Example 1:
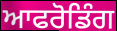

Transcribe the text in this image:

ਆਫਰੋਡਿੰਗ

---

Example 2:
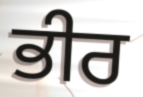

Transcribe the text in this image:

ਭੀਰ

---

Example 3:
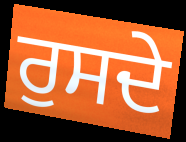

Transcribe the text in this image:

ਰੁਸਦੇ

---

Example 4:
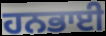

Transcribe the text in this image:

ਹਨਭਾਈ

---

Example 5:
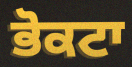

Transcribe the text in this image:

ਭੋਕਟਾ